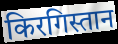
किरगिस्तान